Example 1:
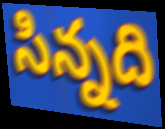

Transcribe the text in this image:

సిన్నది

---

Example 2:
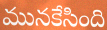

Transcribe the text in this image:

మునకేసింది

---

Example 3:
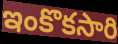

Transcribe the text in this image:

ఇంకొకసారి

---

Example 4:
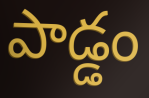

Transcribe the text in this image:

పాడ్డం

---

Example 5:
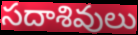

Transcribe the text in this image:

సదాశివులు